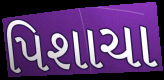
પિશાચા